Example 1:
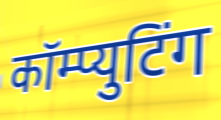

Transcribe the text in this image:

कॉम्प्युटिंग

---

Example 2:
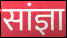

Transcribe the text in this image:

सांज्ञा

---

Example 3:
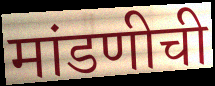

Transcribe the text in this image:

मांडणीची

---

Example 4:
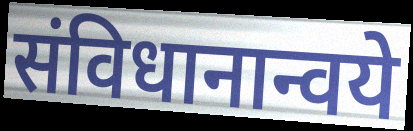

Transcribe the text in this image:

संविधानान्वये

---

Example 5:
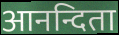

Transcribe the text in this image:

आनन्दिता